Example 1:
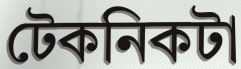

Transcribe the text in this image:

টেকনিকটা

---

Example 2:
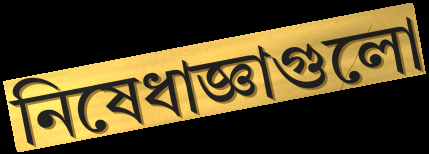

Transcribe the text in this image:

নিষেধাজ্ঞাগুলো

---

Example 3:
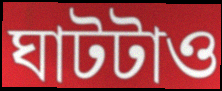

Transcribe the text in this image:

ঘাটটাও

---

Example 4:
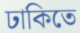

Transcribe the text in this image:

ঢাকিতে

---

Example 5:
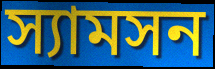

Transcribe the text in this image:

স্যামসন